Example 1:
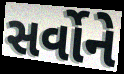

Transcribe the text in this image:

સર્વોને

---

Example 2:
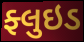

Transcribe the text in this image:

ફ્લુઇડ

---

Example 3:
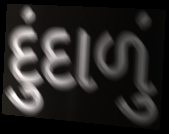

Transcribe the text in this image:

દુંદાળું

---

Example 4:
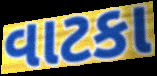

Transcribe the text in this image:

વાટકા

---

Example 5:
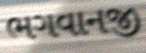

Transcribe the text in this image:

ભગવાનજી